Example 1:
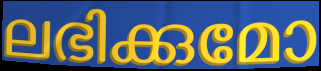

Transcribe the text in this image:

ലഭിക്കുമോ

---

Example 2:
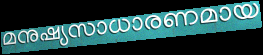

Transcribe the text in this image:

മനുഷ്യസാധാരണമായ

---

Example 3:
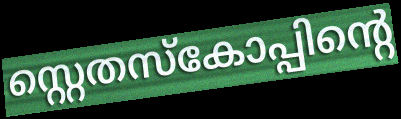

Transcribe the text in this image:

സ്റ്റെതസ്കോപ്പിന്റെ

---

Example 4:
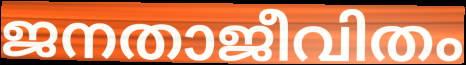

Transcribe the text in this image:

ജനതാജീവിതം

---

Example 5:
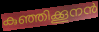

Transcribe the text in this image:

കുഞ്ഞിക്കൂനൻ